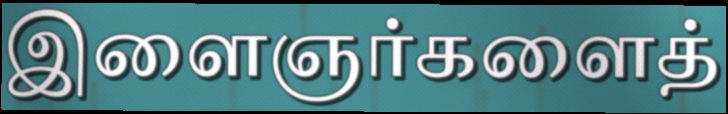
இளைஞர்களைத்